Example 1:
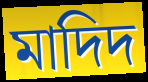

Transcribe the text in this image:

মাদিদ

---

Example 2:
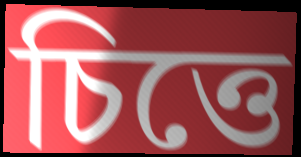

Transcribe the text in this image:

চিত্তে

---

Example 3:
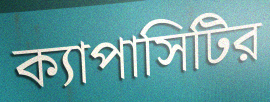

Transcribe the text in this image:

ক্যাপাসিটির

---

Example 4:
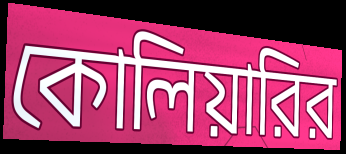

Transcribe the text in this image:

কোলিয়ারির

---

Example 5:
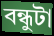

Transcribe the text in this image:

বন্ধুটা